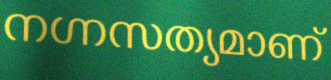
നഗ്നസത്യമാണ്